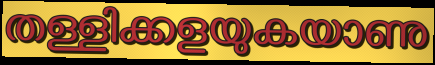
തള്ളിക്കളയുകയാണു